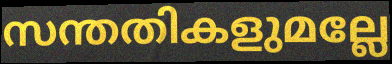
സന്തതികളുമല്ലേ